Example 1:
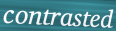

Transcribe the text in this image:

contrasted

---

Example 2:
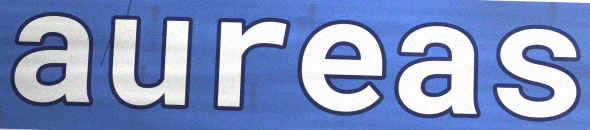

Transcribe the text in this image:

aureas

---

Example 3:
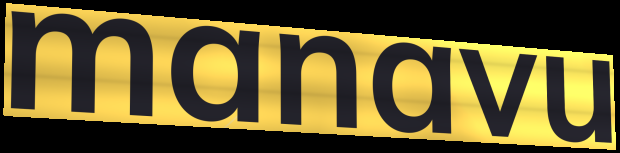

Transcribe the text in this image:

manavu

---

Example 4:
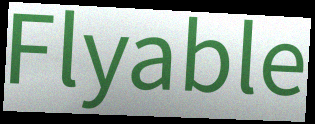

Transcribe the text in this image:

Flyable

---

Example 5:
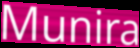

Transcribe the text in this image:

Munira